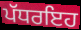
ਪੱਧਰਇਹ